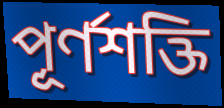
পূর্ণশক্তি